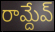
రామ్దేవ్